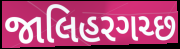
જાલિહરગચ્છ